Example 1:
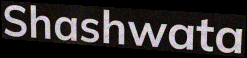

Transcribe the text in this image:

Shashwata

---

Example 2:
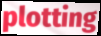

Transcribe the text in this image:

plotting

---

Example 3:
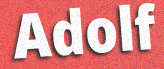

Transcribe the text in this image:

Adolf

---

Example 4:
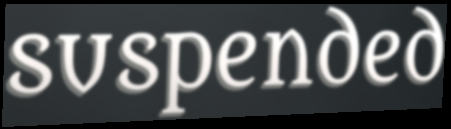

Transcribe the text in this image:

suspended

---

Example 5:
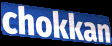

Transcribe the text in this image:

chokkan